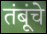
तंबूंचे